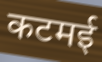
कटमई